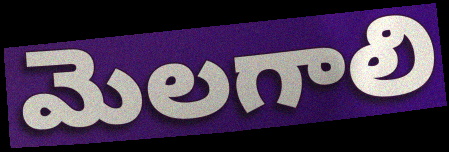
మెలగాలి